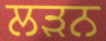
ਲੜਨ